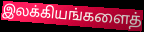
இலக்கியங்களைத்